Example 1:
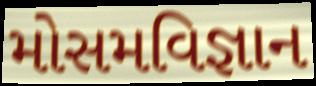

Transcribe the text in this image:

મોસમવિજ્ઞાન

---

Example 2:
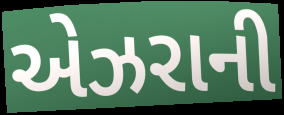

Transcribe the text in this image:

એઝરાની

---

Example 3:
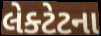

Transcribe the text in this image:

લેક્ટેટના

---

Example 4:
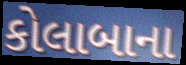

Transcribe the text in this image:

કોલાબાના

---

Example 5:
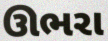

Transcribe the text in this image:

ઊભરા